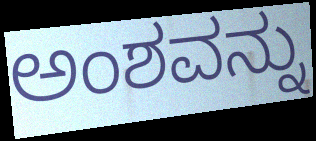
ಅಂಶವನ್ನು